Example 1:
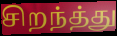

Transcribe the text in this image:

சிறந்த்து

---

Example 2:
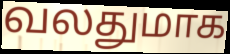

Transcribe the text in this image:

வலதுமாக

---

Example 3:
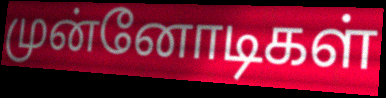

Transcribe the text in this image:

முன்னோடிகள்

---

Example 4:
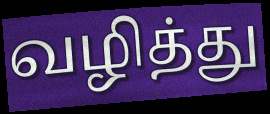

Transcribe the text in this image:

வழித்து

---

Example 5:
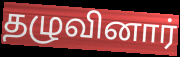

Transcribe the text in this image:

தழுவினார்